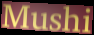
Mushi